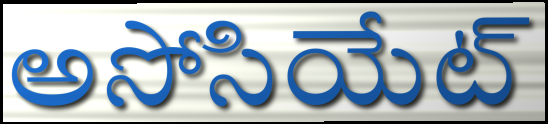
అసోసియేట్